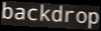
backdrop